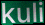
kuli